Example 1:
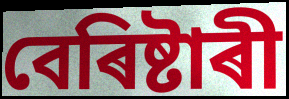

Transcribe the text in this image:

বেৰিষ্টাৰী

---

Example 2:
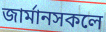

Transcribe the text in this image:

জাৰ্মানসকলে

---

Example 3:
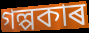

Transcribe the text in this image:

গল্পকাৰ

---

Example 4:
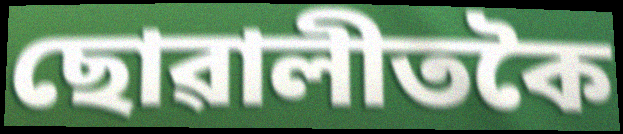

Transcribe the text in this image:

ছোৱালীতকৈ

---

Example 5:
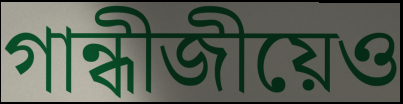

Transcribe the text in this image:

গান্ধীজীয়েও